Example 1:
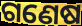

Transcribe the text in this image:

ଗଣେଷ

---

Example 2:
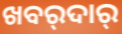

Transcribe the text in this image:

ଖବର୍‍ଦାର୍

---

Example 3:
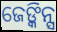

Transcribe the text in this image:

ଜେଙ୍କିନ୍ସ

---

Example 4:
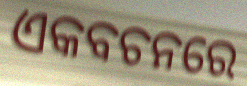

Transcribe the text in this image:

ଏକବଚନରେ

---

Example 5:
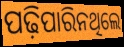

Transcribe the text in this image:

ପଢ଼ିପାରିନଥିଲେ